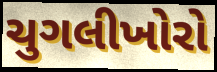
ચુગલીખોરો